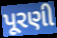
પૂરણી